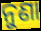
ନୁଣା